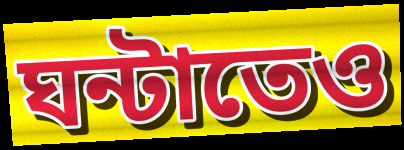
ঘন্টাতেও